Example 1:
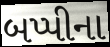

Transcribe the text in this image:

બપ્પીના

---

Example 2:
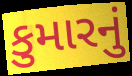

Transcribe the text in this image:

કુમારનું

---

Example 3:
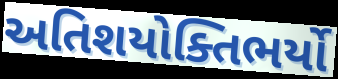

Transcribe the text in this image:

અતિશયોક્તિભર્યો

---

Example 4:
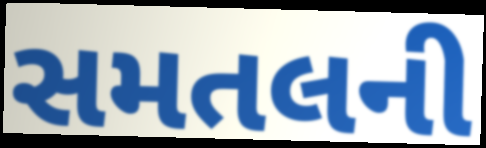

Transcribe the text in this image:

સમતલની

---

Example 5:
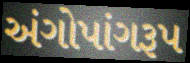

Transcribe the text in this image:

અંગોપાંગરૂપ